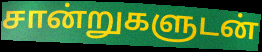
சான்றுகளுடன்